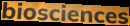
biosciences